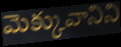
మెక్కువానిని